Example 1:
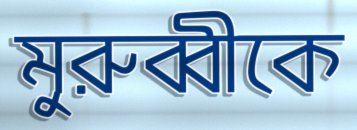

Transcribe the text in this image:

মুরুব্বীকে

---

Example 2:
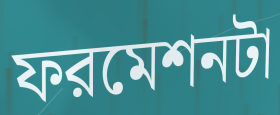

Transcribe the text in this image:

ফরমেশনটা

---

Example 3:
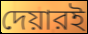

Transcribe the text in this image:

দেয়ারই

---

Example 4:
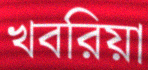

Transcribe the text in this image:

খবরিয়া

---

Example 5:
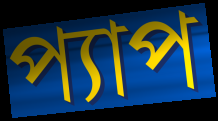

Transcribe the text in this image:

প্যাপ